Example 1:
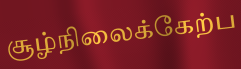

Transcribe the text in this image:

சூழ்நிலைக்கேற்ப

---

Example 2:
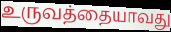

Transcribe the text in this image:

உருவத்தையாவது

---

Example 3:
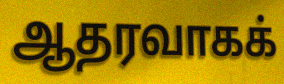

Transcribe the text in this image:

ஆதரவாகக்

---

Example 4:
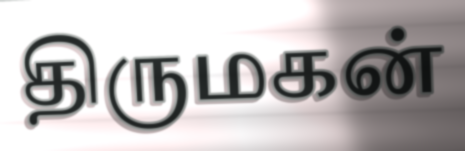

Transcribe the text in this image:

திருமகன்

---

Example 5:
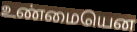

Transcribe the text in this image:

உண்மையென